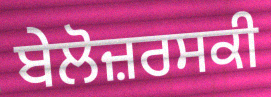
ਬੇਲੋਜ਼ਰਸਕੀ